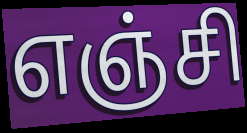
எஞ்சி